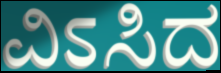
ವಿಽಸಿದ